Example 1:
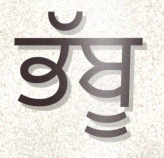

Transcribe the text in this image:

ਭੱਬੂ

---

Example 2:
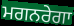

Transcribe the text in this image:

ਮਗਨਰੇਗਾ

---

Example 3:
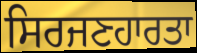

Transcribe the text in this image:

ਸਿਰਜਣਹਾਰਤਾ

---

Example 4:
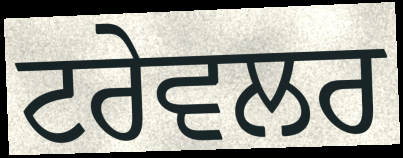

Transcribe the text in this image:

ਟਰੇਵਲਰ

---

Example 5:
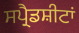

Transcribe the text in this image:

ਸਪ੍ਰੈਡਸ਼ੀਟਾਂ